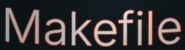
Makefile